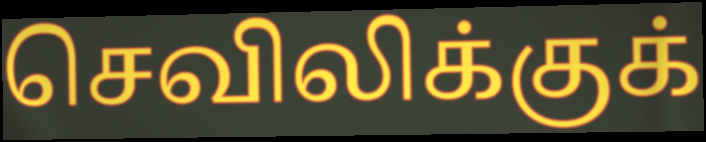
செவிலிக்குக்